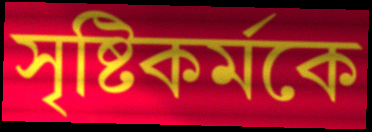
সৃষ্টিকর্মকে